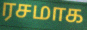
ரசமாக